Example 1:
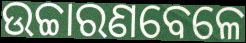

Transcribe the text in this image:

ଉଚ୍ଚାରଣବେଳେ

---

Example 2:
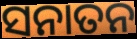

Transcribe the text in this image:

ସନାତନ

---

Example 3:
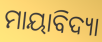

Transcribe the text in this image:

ମାୟାବିଦ୍ୟା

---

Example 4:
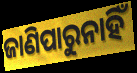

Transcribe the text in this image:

ଜାଣିପାରୁନାହିଁ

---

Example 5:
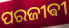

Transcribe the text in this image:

ପରଜୀଵୀ